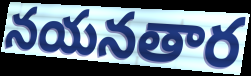
నయనతార